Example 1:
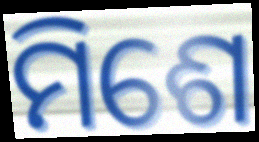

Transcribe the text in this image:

ମିଶେ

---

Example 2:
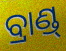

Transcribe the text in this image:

ବ୍ରାଣ୍ଡ୍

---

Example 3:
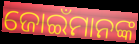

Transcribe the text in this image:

ଜୋଇଁମାନଙ୍କ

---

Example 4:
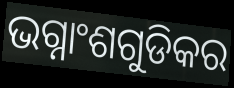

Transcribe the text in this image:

ଭଗ୍ନାଂଶଗୁଡିକର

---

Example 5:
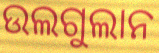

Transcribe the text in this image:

ଉଲଗୁଲାନ